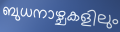
ബുധനാഴ്ചകളിലും